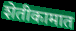
शेतीकामात